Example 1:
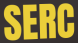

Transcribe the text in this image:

SERC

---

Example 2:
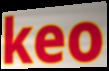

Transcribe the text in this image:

keo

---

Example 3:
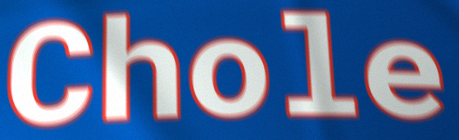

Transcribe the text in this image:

Chole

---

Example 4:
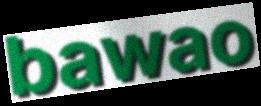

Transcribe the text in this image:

bawao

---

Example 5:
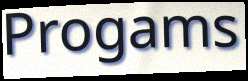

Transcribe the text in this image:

Progams